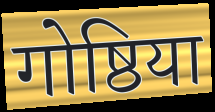
गोष्ठिया